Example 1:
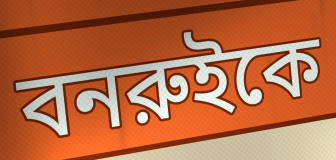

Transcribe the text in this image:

বনরুইকে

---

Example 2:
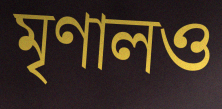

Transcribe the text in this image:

মৃণালও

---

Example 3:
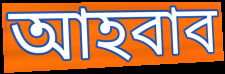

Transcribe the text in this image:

আহবাব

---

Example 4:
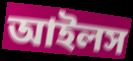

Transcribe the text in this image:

আইলস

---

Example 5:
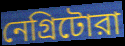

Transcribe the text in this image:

নেগ্রিটোরা